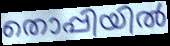
തൊപ്പിയിൽ